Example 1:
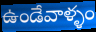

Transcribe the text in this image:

ఉండేవాళ్ళం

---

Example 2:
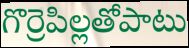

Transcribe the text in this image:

గొర్రెపిల్లతోపాటు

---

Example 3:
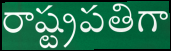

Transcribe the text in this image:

రాష్ట్రపతిగా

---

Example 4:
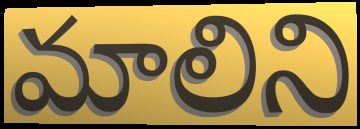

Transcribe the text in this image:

మాలిని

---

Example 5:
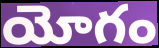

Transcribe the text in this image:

యోగం